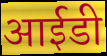
आईडी